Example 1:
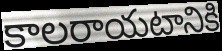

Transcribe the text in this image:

కాలరాయటానికి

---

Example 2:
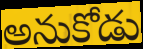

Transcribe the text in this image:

అనుకోడు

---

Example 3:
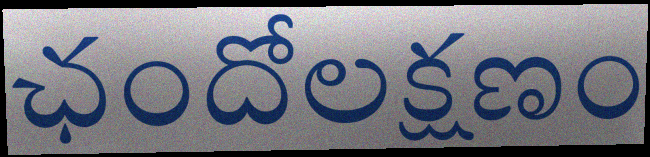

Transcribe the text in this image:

ఛందోలక్షణం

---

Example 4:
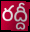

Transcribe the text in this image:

రద్దీ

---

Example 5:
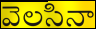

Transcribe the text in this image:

వెలసినా